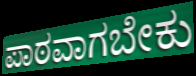
ಪಾಠವಾಗಬೇಕು